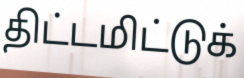
திட்டமிட்டுக்